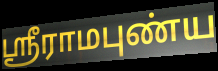
ஸ்ரீராமபுண்ய